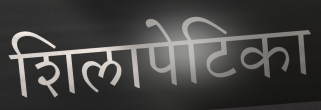
शिलापेटिका